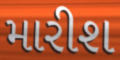
મારીશ